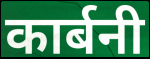
कार्बनी